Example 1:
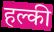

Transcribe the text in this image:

हल्‍की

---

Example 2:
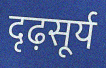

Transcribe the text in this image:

दृढ़सूर्य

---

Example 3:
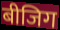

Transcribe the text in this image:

बीजिग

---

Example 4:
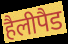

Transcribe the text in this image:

हैलीपैड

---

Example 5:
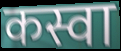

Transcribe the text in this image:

कस्वा